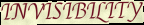
INVISIBILITY